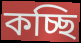
কচ্ছি